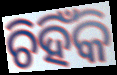
ଚିହିଁକି